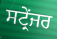
ਸਟ੍ਰੇਂਜਰ